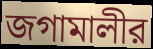
জগামালীর